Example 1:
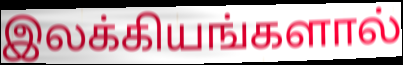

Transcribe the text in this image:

இலக்கியங்களால்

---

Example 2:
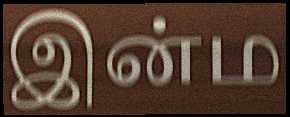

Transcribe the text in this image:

இன்ம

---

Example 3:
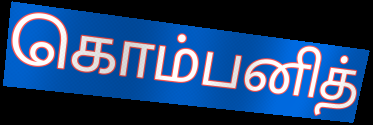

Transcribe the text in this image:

கொம்பனித்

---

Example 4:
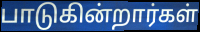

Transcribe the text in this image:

பாடுகின்றார்கள்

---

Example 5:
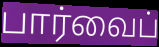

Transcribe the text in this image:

பார்வைப்